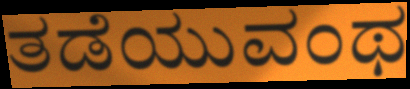
ತಡೆಯುವಂಥ